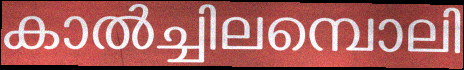
കാൽച്ചിലമ്പൊലി